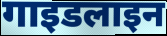
गाइडलाइन